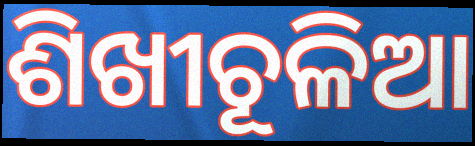
ଶିଖୀଚୂଳିଆ